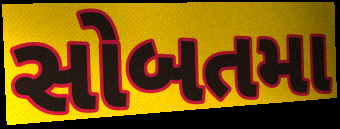
સોબતમા